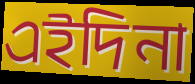
এইদিনা